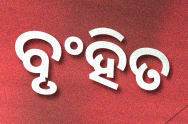
ବୃଂହିତ